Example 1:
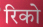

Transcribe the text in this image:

रिको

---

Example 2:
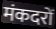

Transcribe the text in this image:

मंकदरों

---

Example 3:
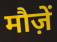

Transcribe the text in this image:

मौज़ें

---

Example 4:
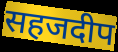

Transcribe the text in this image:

सहजदीप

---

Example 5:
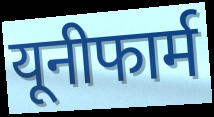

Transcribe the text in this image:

यूनीफार्म